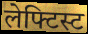
लेफ्टिस्ट